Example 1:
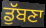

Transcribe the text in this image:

ਡੁੱਬਣਾ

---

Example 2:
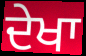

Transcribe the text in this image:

ਦੇਖਾ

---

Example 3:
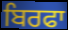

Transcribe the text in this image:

ਬਿਰਫਾ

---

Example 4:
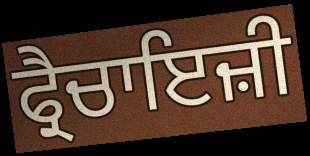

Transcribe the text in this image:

ਫ੍ਰੈਚਾਇਜ਼ੀ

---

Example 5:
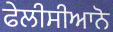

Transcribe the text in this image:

ਫੇਲੀਸੀਆਨੋ